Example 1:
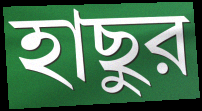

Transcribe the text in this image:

হাছুর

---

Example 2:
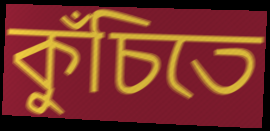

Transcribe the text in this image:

কুঁচিতে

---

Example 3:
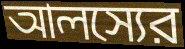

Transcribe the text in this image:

আলস্যের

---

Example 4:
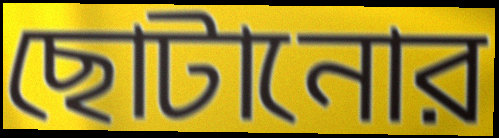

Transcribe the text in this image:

ছোটানোর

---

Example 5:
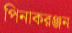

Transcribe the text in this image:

পিনাকরঞ্জন